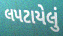
લપટાયેલું